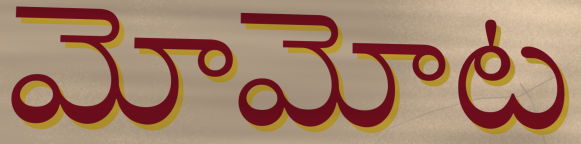
మోమోట